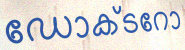
ഡോക്ടറോ